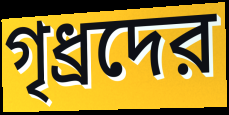
গৃধ্রদের